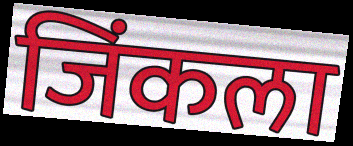
जिंकला